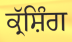
ਕ੍ਰੱਸ਼ਿੰਗ